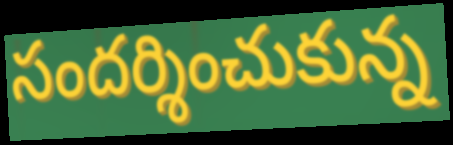
సందర్శించుకున్న